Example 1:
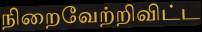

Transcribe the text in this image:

நிறைவேற்றிவிட்ட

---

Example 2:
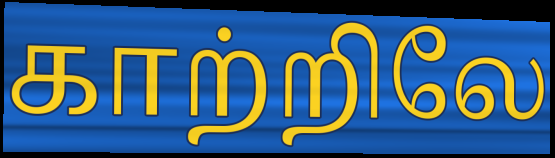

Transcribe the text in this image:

காற்றிலே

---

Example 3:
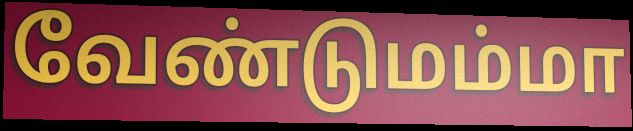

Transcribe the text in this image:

வேண்டுமம்மா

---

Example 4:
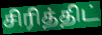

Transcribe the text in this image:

சிரித்திட்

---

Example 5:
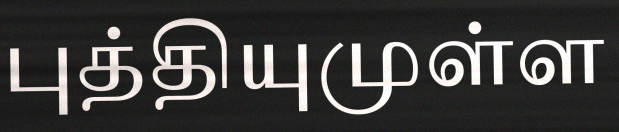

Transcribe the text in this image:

புத்தியுமுள்ள